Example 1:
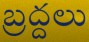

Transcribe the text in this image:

బ్రద్దలు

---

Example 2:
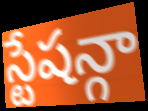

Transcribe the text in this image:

స్టేషన్గా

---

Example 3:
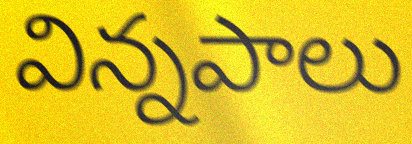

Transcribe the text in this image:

విన్నపాలు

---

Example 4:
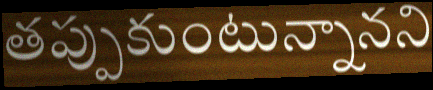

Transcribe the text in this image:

తప్పుకుంటున్నానని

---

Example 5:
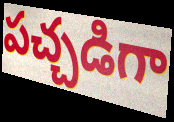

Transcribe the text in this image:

పచ్చడిగా